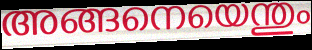
അങ്ങനെയെന്തും